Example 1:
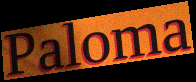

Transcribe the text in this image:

Paloma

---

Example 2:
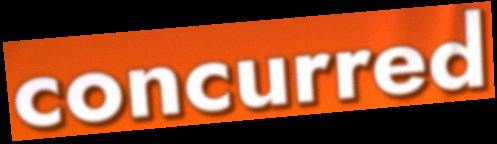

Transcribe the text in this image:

concurred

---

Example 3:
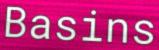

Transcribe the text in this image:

Basins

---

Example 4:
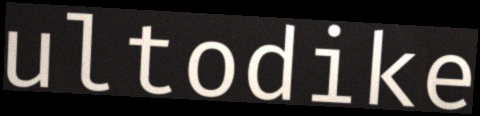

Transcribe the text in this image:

ultodike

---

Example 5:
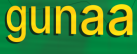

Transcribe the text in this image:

gunaa